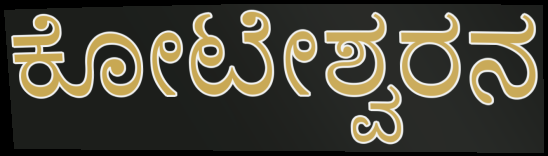
ಕೋಟೇಶ್ವರನ